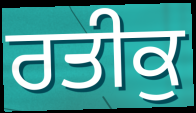
ਰਤੀਕੁ